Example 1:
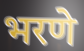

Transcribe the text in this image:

भरणे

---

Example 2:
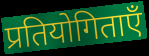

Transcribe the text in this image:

प्रतियोगिताएँ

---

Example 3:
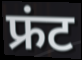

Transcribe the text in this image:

फ्रंट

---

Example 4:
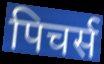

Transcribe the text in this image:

पिचर्स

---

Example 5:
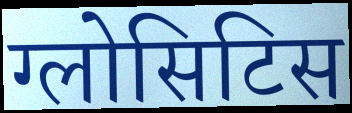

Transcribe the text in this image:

ग्लोसिटिस